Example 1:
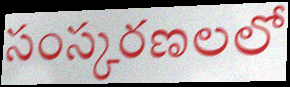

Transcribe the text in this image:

సంస్కరణలలో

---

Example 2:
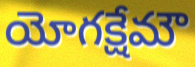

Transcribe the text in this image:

యోగక్షేమౌ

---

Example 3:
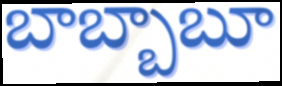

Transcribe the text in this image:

బాబ్బాబూ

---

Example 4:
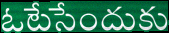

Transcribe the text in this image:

ఓటేసేందుకు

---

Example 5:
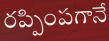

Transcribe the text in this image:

రప్పింపగానే